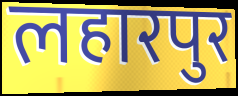
लहारपुर